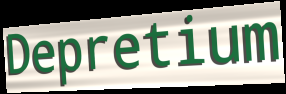
Depretium